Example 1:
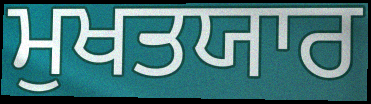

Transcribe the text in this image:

ਮੁਖਤਯਾਰ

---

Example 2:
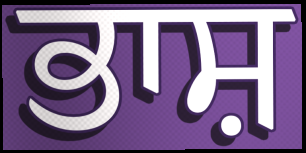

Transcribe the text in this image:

ਭਾਸ਼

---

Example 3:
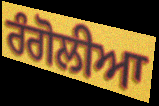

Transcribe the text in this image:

ਰੰਗੋਲੀਆ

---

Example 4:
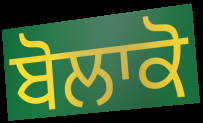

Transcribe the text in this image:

ਬੋਲਾਕੋ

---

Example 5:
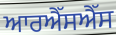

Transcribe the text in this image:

ਆਰਐੱਸਐੱਸ